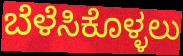
ಬೆಳೆಸಿಕೊಳ್ಳಲು